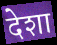
देशा